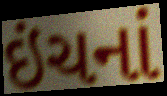
ઇંચનાં